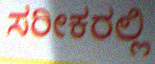
ಸರೀಕರಲ್ಲಿ